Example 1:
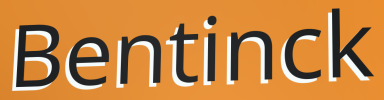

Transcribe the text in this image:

Bentinck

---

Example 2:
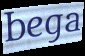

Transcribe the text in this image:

bega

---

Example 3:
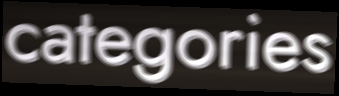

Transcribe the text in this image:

categories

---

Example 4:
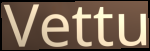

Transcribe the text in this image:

Vettu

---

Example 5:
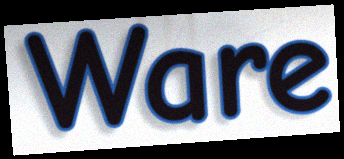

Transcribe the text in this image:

Ware